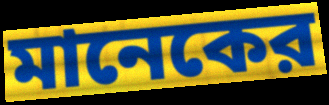
মানেকের